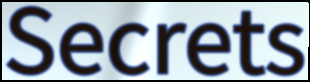
Secrets